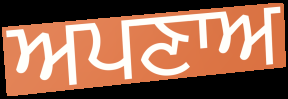
ਅਪਣਾਅ